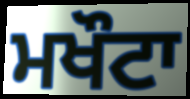
ਮਖੌਟਾ